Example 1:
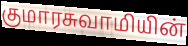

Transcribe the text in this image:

குமாரசுவாமியின்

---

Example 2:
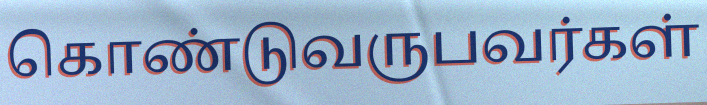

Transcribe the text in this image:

கொண்டுவருபவர்கள்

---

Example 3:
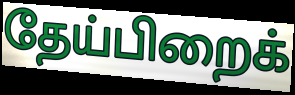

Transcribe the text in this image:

தேய்பிறைக்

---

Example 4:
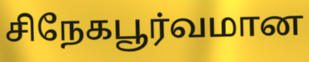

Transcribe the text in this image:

சிநேகபூர்வமான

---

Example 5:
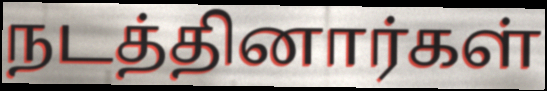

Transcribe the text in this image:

நடத்தினார்கள்